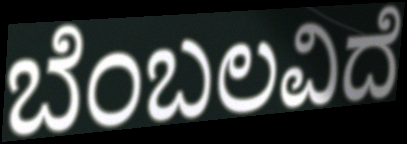
ಬೆಂಬಲವಿದೆ